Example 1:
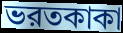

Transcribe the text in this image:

ভরতকাকা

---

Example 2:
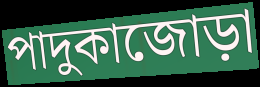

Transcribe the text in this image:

পাদুকাজোড়া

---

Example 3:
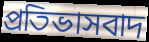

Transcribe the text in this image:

প্রতিভাসবাদ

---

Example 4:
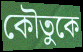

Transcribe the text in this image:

কৌতুকে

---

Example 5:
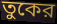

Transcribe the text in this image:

তুকের